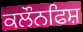
ਕਲੌਨਫਿਸ਼